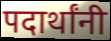
पदार्थांनी